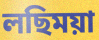
লছিময়া